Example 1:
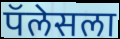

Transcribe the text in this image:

पॅलेसला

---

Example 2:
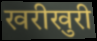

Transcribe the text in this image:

खरीखुरी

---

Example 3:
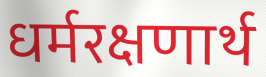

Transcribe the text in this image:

धर्मरक्षणार्थ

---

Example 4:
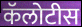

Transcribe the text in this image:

कॅलोटीस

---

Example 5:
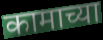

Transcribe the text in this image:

कामाच्या